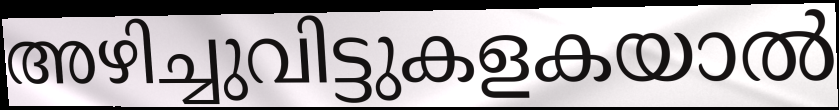
അഴിച്ചുവിട്ടുകളകയാൽ